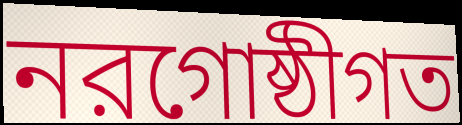
নরগোষ্ঠীগত